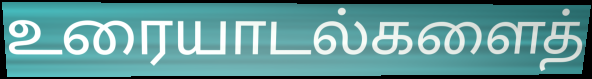
உரையாடல்களைத்